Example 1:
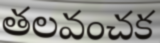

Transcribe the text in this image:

తలవంచక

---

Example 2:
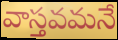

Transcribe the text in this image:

వాస్తవమనే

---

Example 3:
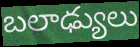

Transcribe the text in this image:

బలాఢ్యులు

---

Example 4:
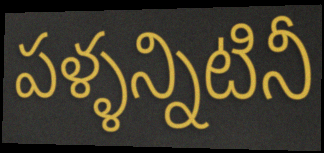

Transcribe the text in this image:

పళ్ళన్నిటినీ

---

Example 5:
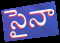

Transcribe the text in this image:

సైనా